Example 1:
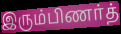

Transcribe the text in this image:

இரும்பிணர்த்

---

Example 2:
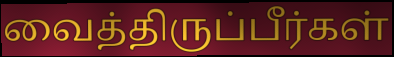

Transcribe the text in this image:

வைத்திருப்பீர்கள்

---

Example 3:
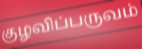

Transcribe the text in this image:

குழவிப்பருவம்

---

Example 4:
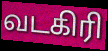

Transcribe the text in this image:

வடகிரி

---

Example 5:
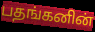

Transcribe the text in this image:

பதங்கனின்